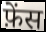
फ़ेंस